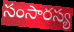
సంసారస్య